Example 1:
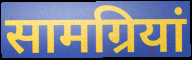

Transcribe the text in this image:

सामग्रियां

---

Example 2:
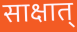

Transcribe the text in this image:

साक्षात्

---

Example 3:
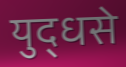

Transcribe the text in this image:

युद्धसे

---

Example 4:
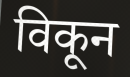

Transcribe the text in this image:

विकून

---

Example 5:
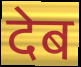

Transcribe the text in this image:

देब